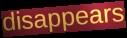
disappears